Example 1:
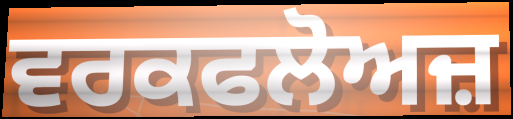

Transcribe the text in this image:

ਵਰਕਫਲੋਅਜ਼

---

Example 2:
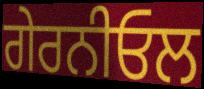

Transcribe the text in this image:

ਗੇਰਨੀਓਲ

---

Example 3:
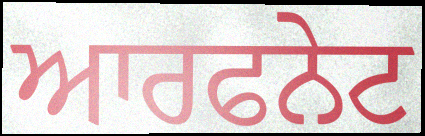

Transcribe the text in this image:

ਆਰਫਨੇਟ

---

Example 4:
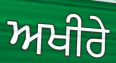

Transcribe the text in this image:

ਅਖੀਰੇ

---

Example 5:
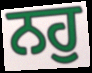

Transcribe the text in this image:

ਨਹੁ